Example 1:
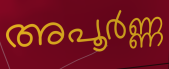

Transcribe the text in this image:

അപൂർണ്ണ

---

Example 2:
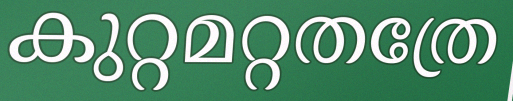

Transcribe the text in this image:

കുറ്റമറ്റതത്രേ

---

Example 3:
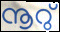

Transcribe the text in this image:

നൂറു്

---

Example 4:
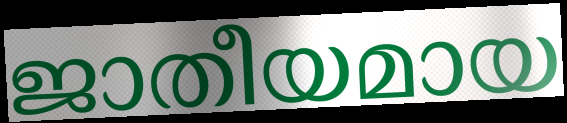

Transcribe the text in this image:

ജാതീയമായ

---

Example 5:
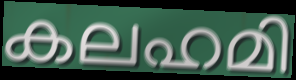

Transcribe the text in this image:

കലഹമി